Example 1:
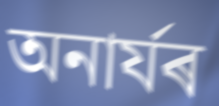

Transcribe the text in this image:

অনাৰ্যৰ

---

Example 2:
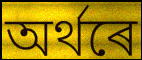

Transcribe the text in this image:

অৰ্থৰে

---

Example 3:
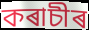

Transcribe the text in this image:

কৰাচীৰ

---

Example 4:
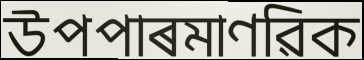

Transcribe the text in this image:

উপপাৰমাণৱিক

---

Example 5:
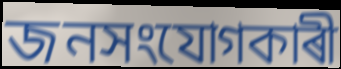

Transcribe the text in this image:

জনসংযোগকাৰী